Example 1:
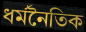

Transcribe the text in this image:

ধর্মনৈতিক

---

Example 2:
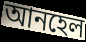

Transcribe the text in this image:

আনহেল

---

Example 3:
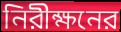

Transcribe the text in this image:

নিরীক্ষনের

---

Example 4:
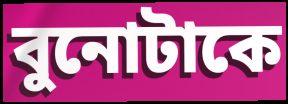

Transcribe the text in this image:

বুনোটাকে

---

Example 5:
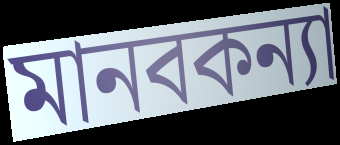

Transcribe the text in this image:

মানবকন্যা